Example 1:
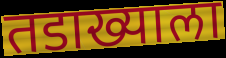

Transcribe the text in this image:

तडाख्याला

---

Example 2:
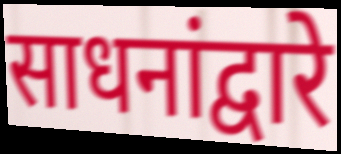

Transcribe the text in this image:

साधनांद्वारे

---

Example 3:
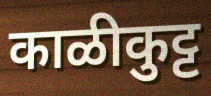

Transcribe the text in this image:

काळीकुट्ट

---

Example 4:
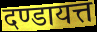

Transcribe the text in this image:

दण्डायत्त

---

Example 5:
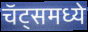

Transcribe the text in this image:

चॅट्समध्ये